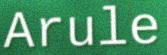
Arule